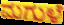
ಮಗುಳೆ